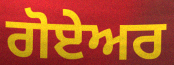
ਗੋਏਅਰ